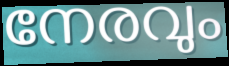
നേരവും